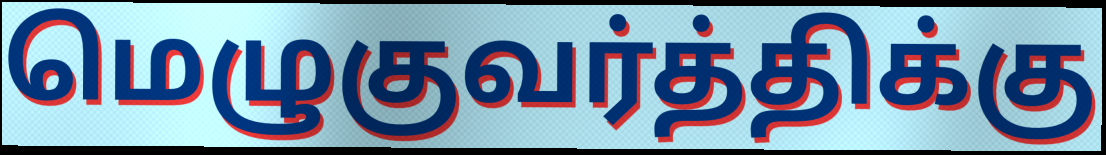
மெழுகுவர்த்திக்கு